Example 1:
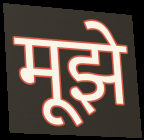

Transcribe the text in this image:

मूझे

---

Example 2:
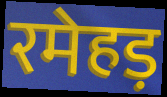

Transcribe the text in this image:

रमेहड़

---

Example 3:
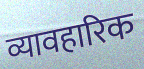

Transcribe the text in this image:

व्यावहारिक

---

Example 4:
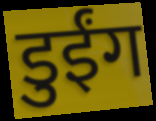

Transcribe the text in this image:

डुईंग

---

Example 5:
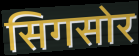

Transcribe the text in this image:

सिगसोर